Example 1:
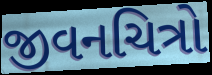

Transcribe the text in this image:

જીવનચિત્રો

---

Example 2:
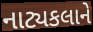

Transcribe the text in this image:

નાટ્યકલાને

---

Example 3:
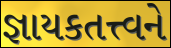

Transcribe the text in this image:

જ્ઞાયકતત્ત્વને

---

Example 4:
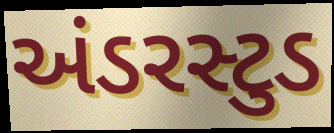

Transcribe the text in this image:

અંડરસ્ટુડ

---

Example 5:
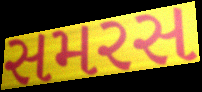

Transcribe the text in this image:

સમરસ